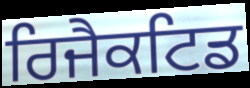
ਰਿਜੈਕਟਿਡ